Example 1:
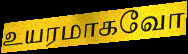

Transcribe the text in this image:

உயரமாகவோ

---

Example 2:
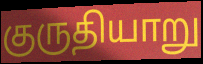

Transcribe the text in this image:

குருதியாறு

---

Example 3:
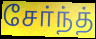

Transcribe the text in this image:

சேர்ந்த்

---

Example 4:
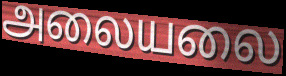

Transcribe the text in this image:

அலையலை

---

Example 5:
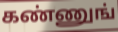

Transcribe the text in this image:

கண்ணுங்